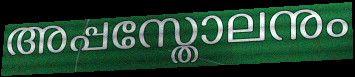
അപ്പസ്തോലനും